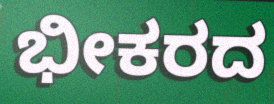
ಭೀಕರದ